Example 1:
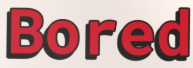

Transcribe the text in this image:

Bored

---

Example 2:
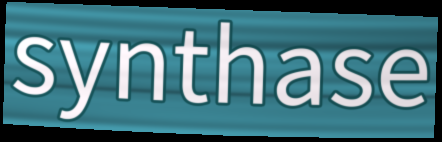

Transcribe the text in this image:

synthase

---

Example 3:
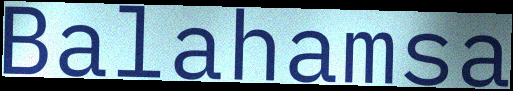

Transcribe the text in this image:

Balahamsa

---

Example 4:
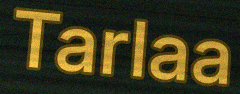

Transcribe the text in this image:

Tarlaa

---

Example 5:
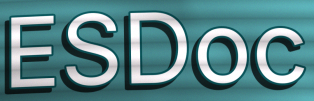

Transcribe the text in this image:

ESDoc